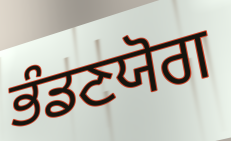
ਭੰਡਣਯੋਗ